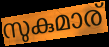
സുകുമാര്